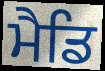
ਮੈਡਿ